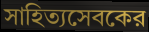
সাহিত্যসেবকের